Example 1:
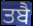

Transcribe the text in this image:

ਤਬੈ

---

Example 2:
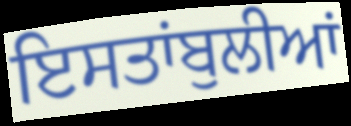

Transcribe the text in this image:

ਇਸਤਾਂਬੁਲੀਆਂ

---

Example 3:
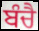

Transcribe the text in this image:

ਬੰਚੈ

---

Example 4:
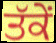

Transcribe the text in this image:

ਤੱਕੇਂ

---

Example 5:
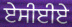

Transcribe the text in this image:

ਏਸੀਈਏ